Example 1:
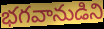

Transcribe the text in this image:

భగవానుడిని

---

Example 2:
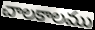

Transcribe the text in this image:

చాలకాలము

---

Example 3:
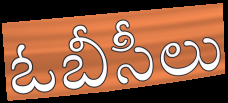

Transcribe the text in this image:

ఓబీసీలు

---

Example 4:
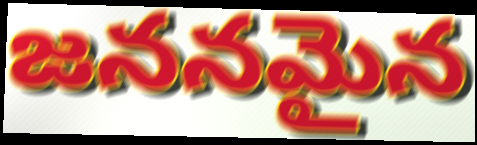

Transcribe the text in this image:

జననమైన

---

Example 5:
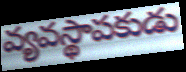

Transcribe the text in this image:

వ్యవస్థాపకుడు